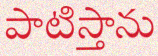
పాటిస్తాను